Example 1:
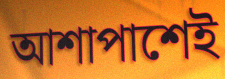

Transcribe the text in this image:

আশাপাশেই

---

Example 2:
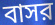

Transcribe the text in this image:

বাসর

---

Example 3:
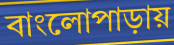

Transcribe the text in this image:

বাংলোপাড়ায়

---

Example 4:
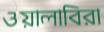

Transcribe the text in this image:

ওয়ালাবিরা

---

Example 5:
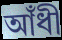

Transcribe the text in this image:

আঁধী